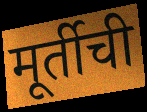
मूर्तीची